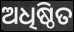
ଅଧିଷ୍ଠିତ